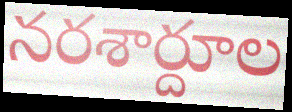
నరశార్దూల